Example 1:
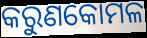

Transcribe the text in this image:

କରୁଣକୋମଳ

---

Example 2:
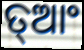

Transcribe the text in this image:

ତ୍ଆଂ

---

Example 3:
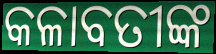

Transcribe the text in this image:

କଳାବତୀଙ୍କ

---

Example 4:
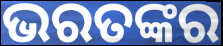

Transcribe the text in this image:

ଭରତଙ୍କର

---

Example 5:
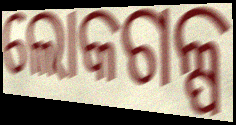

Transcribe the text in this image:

ଲୋକଗଳ୍ପ